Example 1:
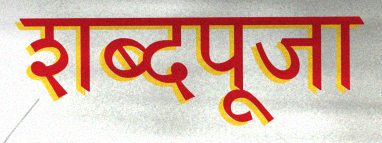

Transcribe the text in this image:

शब्दपूजा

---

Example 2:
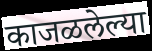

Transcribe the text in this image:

काजळलेल्या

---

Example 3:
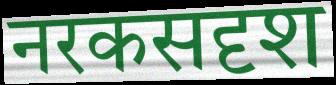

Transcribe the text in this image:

नरकसदृश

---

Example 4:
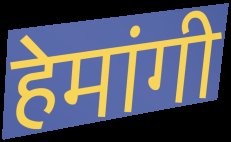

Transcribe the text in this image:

हेमांगी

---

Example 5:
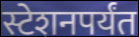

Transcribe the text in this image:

स्टेशनपर्यंत